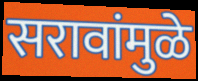
सरावांमुळे